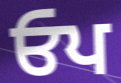
ਓਪ